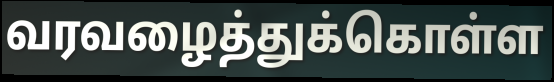
வரவழைத்துக்கொள்ள